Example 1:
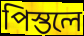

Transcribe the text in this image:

পিস্তলে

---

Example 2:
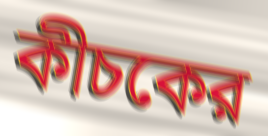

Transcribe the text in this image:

কীচকের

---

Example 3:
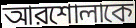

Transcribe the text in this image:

আরশোলাকে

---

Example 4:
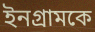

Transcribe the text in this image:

ইনগ্রামকে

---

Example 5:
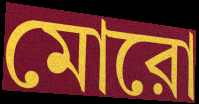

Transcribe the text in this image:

মোরো